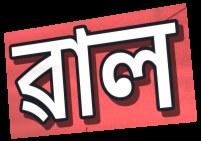
ৱাল